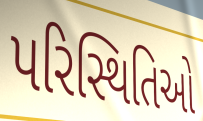
પરિસ્થિતિઓ